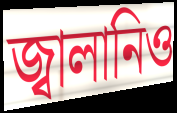
জ্বালানিও